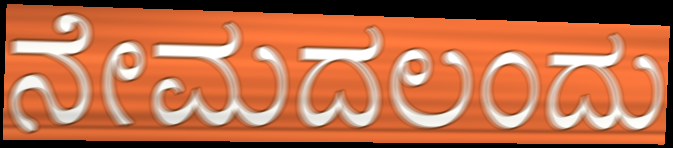
ನೇಮದಲಂದು